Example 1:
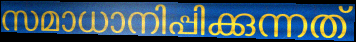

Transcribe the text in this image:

സമാധാനിപ്പിക്കുന്നത്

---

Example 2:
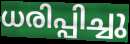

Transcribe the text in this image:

ധരിപ്പിച്ചു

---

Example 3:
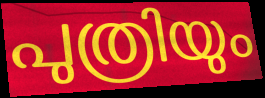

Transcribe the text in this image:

പുത്രിയും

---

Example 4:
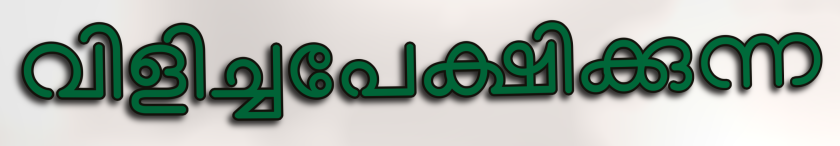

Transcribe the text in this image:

വിളിച്ചപേക്ഷിക്കുന്ന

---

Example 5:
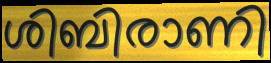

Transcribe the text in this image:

ശിബിരാണി